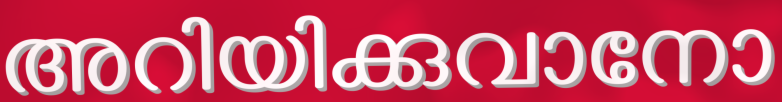
അറിയിക്കുവാനോ